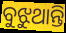
ବୁଝୁଥାନ୍ତି